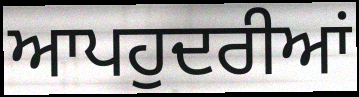
ਆਪਹੁਦਰੀਆਂ